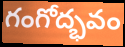
గంగోద్భవం